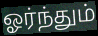
ஓர்ந்தும்